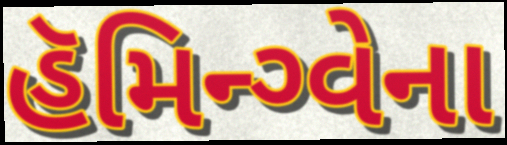
હૅમિન્ગ્વેના